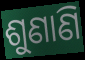
ଶୁଣାଣି